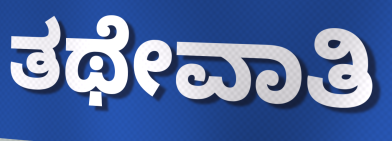
ತಥೇವಾತಿ